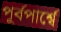
পূর্বপার্শ্বে